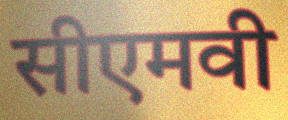
सीएमवी